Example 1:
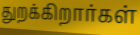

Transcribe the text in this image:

துறக்கிறார்கள்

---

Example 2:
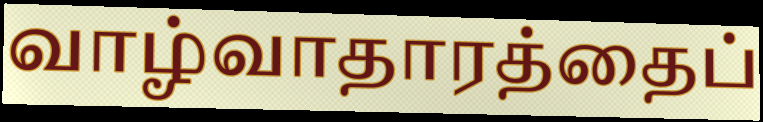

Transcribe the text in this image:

வாழ்வாதாரத்தைப்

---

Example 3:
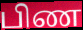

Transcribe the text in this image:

பிண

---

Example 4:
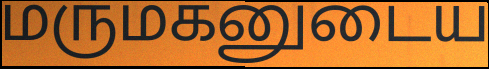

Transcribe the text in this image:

மருமகனுடைய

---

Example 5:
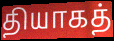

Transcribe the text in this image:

தியாகத்